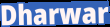
Dharwar